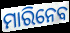
ମାରିନେବ